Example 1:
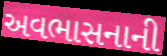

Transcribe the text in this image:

અવભાસનાની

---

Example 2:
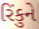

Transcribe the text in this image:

રિંકુને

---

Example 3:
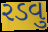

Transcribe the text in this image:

રડવુ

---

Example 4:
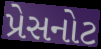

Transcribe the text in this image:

પ્રેસનોટ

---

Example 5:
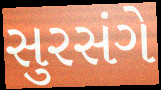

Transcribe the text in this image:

સુરસંગે